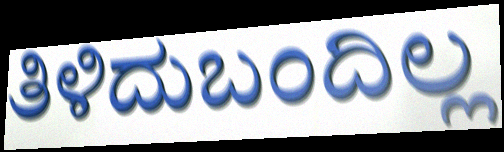
ತಿಳಿದುಬಂದಿಲ್ಲ